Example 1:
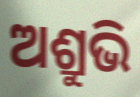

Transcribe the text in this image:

ଅଶ୍ରୁଭି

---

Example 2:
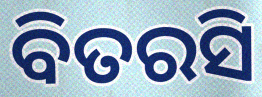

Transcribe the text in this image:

ବିତରସି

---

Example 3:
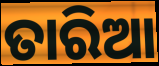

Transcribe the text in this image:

ତାରିଆ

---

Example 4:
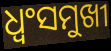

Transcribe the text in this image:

ଧ୍ୱଂସମୁଖୀ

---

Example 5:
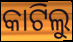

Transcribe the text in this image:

କାଟିଲୁ